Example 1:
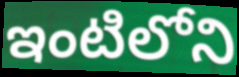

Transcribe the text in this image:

ఇంటిలోని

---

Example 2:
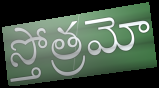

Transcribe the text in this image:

స్తోత్రమో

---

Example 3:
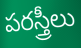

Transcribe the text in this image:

పరస్త్రీలు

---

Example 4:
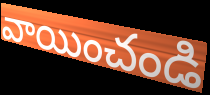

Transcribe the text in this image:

వాయించండి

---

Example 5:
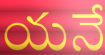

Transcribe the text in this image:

యనే